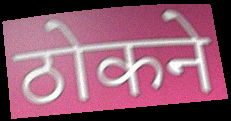
ठोकने